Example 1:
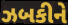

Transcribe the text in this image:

ઝબકીને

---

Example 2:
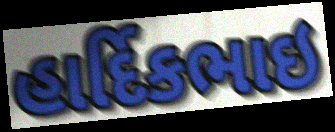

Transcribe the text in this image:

હાર્દિકભાઇ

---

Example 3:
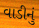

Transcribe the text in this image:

વાડીનું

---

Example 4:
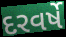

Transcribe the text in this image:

દરવર્ષે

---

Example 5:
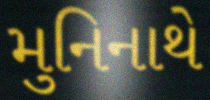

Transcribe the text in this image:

મુનિનાથે